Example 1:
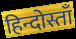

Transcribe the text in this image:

हिन्दोस्ताँ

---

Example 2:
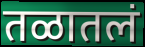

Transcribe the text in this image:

तळातलं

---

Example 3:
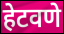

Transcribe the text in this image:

हेटवणे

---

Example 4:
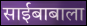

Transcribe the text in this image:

साईबाबाला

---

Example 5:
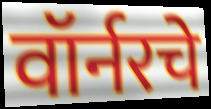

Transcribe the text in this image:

वॉर्नरचे